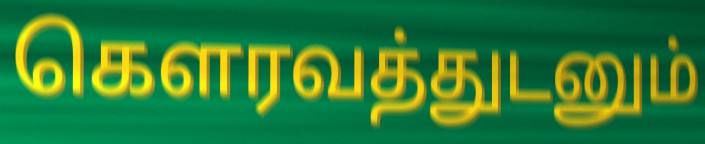
கௌரவத்துடனும்